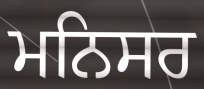
ਮਨਿਸਰ